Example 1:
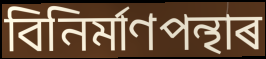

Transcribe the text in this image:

বিনিৰ্মাণপন্থাৰ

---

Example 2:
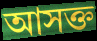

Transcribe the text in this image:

আসক্ত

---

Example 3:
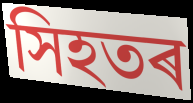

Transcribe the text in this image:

সিহতৰ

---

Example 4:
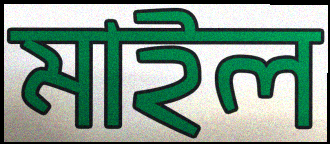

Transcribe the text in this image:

মাইল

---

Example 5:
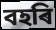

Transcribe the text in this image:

বহৰি